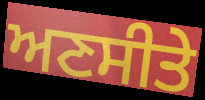
ਅਣਸੀਤੇ